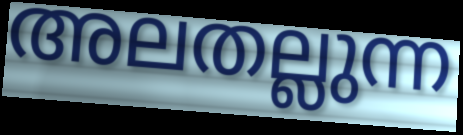
അലതല്ലുന്ന